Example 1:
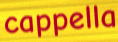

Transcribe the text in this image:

cappella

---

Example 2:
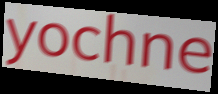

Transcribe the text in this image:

yochne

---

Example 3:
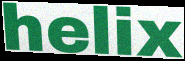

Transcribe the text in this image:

helix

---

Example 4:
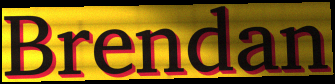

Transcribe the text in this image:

Brendan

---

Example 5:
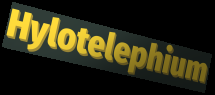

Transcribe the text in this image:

Hylotelephium